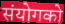
संयोगको